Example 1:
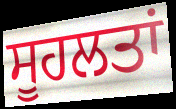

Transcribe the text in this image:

ਸੂਹਲਤਾਂ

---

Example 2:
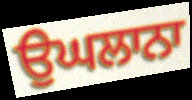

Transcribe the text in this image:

ਉਘਲਾਨਾ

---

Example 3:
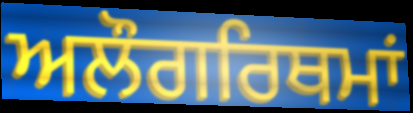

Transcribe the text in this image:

ਅਲੌਗਰਿਥਮਾਂ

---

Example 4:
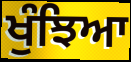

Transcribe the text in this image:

ਖੁੰਝਿਆ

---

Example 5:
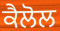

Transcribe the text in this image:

ਕੈਲੋਲ